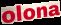
olona